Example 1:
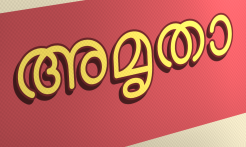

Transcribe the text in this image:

അമൃതാ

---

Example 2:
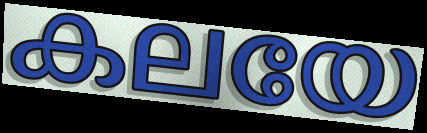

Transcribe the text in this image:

കലയേ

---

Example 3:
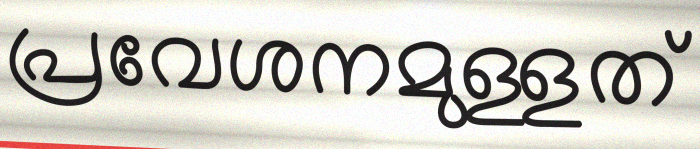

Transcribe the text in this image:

പ്രവേശനമുള്ളത്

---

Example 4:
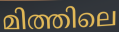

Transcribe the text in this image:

മിത്തിലെ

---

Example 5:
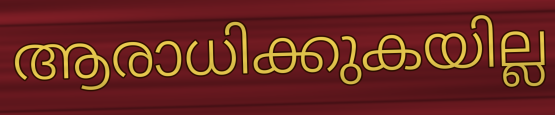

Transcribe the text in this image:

ആരാധിക്കുകയില്ല